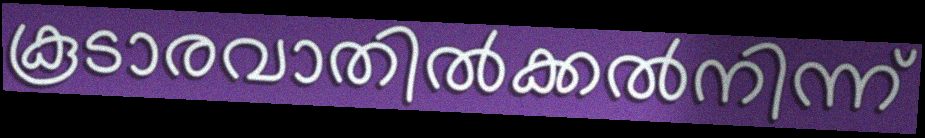
കൂടാരവാതിൽക്കൽനിന്ന്